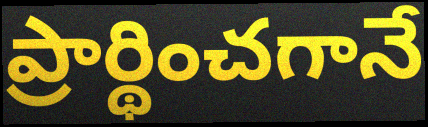
ప్రార్థించగానే